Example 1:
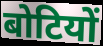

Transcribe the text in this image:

बोटियों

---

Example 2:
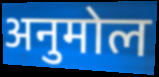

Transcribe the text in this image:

अनुमोल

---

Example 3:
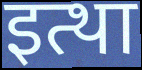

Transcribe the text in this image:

इत्था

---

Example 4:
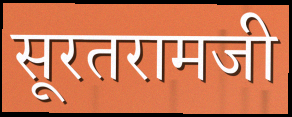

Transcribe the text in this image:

सूरतरामजी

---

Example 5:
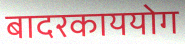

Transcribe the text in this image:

बादरकाययोग